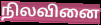
நிலவினை